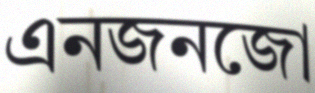
এনজনজো